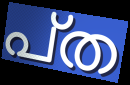
പ്‌ത